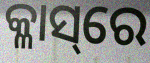
କ୍ଳାସ୍‌ରେ